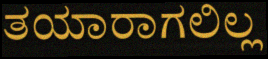
ತಯಾರಾಗಲಿಲ್ಲ